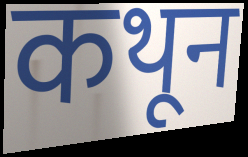
कथून